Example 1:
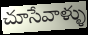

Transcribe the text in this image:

చూసేవాళ్ళు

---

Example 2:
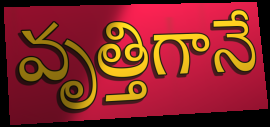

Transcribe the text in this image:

వృత్తిగానే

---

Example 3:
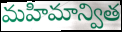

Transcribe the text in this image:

మహిమాన్విత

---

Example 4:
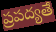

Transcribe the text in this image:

ప్రపద్యతే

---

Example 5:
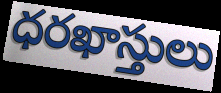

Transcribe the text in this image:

ధరఖాస్తులు